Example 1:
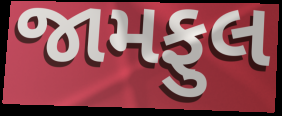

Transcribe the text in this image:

જામફુલ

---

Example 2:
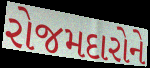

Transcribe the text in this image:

રોજમદારોને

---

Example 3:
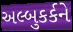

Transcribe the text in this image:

અલ્બુકર્કને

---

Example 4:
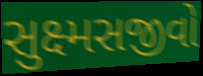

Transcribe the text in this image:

સુક્ષ્મસજીવો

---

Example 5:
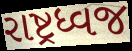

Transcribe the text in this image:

રાષ્ટ્રધ્વજ